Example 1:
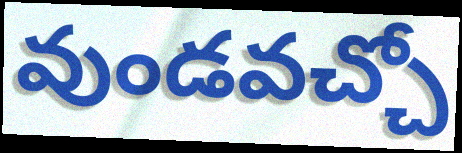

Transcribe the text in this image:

వుండవచ్చో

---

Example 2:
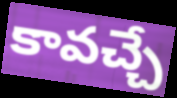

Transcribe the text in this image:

కావచ్చే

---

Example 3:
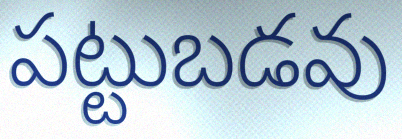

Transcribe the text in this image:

పట్టుబడవు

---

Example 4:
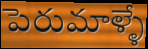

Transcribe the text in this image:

పెరుమాళ్ళే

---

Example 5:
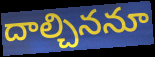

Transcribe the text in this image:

దాల్చిననూ